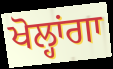
ਖੋਲ੍ਹਾਂਗਾ